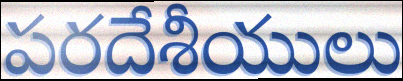
పరదేశీయులు